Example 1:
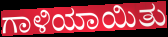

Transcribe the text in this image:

ಗಾಳಿಯಾಯಿತು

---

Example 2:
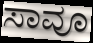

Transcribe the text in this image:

ಸಾವೂ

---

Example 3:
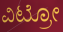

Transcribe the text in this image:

ವಿಟ್ರೋ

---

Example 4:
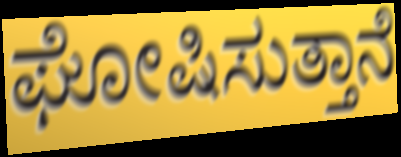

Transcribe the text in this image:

ಘೋಷಿಸುತ್ತಾನೆ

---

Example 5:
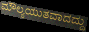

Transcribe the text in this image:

ಮೌಲ್ಯಯುತವಾದದ್ದು